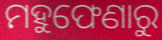
ମହୁଫେଣାରୁ